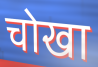
चोखा